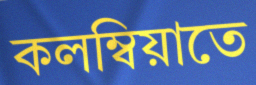
কলম্বিয়াতে